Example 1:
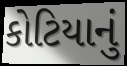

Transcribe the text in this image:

કોટિયાનું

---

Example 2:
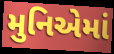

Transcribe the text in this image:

મુનિએમાં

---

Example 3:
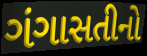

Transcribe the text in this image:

ગંગાસતીનો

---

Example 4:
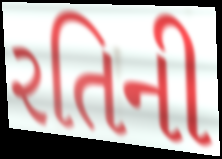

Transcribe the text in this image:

રતિની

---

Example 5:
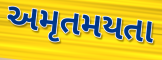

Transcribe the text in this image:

અમૃતમયતા